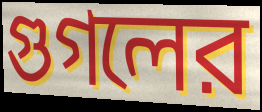
গুগলের